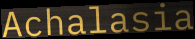
Achalasia